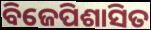
ବିଜେପିଶାସିତ